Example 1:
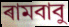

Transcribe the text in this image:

ৰামবাবু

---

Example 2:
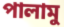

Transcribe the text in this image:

পালামু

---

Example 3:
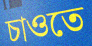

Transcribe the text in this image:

চাওতে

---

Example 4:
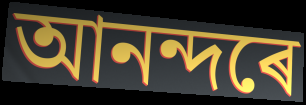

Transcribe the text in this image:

আনন্দৰে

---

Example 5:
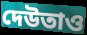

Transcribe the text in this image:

দেউতাও